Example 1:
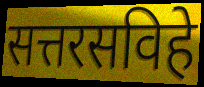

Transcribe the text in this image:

सत्तरसविहे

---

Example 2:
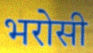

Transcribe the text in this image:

भरोसी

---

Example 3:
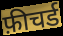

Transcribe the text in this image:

फ़ीचर्ड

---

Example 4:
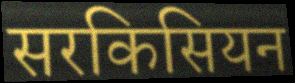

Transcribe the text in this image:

सरकिसियन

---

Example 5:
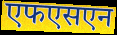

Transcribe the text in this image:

एफएसएन